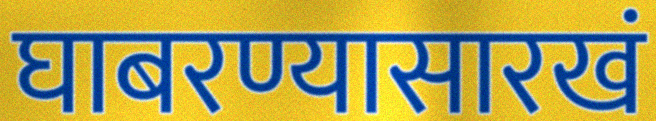
घाबरण्यासारखं